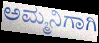
ಅಮ್ಮನಿಗಾಗಿ